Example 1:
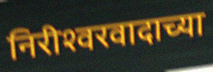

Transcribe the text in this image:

निरीश्वरवादाच्या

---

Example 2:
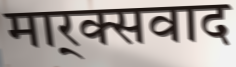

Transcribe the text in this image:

मार्क्सवाद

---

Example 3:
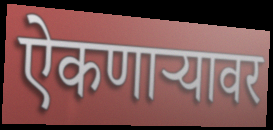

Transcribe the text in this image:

ऐकणार्‍यावर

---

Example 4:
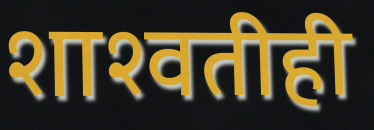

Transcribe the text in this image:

शाश्वतीही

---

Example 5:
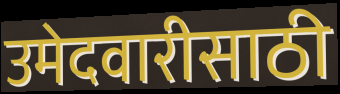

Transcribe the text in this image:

उमेदवारीसाठी